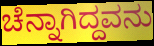
ಚೆನ್ನಾಗಿದ್ದವನು